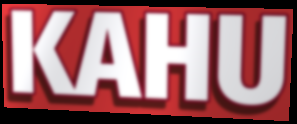
KAHU